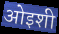
ओइशी